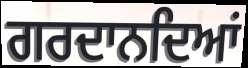
ਗਰਦਾਨਦਿਆਂ